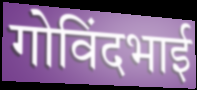
गोविंदभाई